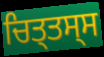
ਚਿਤ੍ਤਸ੍ਸ